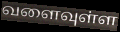
வளைவுள்ள